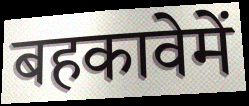
बहकावेमें